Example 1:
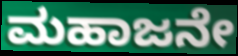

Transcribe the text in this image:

ಮಹಾಜನೇ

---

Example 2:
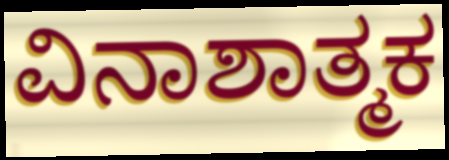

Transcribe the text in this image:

ವಿನಾಶಾತ್ಮಕ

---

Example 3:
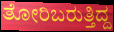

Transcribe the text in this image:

ತೋರಿಬರುತ್ತಿದ್ದ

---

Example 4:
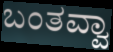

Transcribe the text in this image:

ಬಂತವ್ವಾ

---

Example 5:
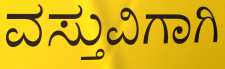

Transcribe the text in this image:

ವಸ್ತುವಿಗಾಗಿ